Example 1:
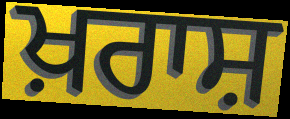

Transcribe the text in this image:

ਖ਼ਰਾਸ਼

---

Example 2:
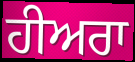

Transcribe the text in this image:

ਹੀਅਰਾ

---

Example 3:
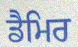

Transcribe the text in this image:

ਡੈਮਿਰ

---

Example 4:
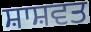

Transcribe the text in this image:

ਸ਼ਾਸ਼ਵਤ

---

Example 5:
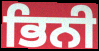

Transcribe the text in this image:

ਭਿਨੀ